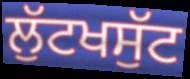
ਲੁੱਟਖਸੁੱਟ